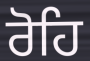
ਰੋਹਿ